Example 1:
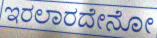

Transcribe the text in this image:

ಇರಲಾರದೇನೋ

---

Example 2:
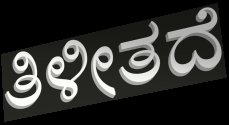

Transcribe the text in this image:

ತಿಳೀತದೆ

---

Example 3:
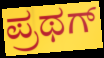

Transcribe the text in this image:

ಪ್ರಥಗ್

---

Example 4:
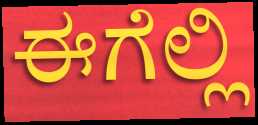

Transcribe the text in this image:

ಈಗೆಲ್ಲಿ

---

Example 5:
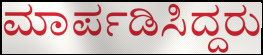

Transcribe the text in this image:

ಮಾರ್ಪಡಿಸಿದ್ದರು